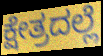
ಕ್ಷೇತ್ರದಲ್ಲೆ